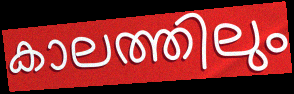
കാലത്തിലും